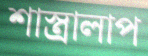
শাস্ত্রালাপ